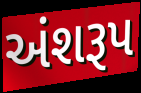
અંશરૂપ